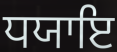
ਧਯਾਇ